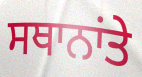
ਸਥਾਨਾਂਤੇ